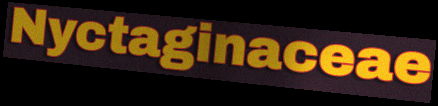
Nyctaginaceae